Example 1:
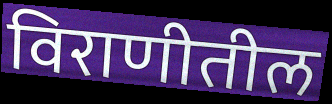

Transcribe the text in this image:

विराणीतील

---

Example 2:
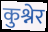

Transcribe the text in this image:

कुश्नेर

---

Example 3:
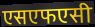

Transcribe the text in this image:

एसएफएसी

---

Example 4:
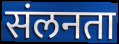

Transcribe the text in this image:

संलनता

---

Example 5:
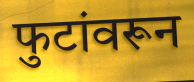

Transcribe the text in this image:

फुटांवरून